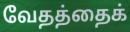
வேதத்தைக்